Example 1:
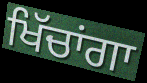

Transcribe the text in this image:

ਖਿੱਚਾਂਗਾ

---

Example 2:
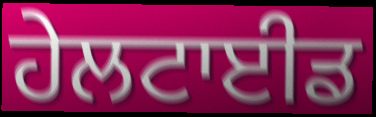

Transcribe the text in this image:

ਹੇਲਟਾਈਡ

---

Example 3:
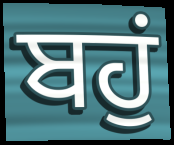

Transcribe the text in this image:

ਬਹੁਂ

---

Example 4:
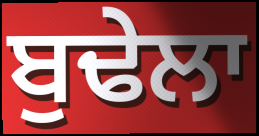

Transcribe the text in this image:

ਬੁਢੇਲਾ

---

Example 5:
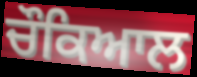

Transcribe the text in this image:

ਚੌਕਿਆਲ